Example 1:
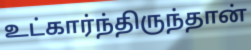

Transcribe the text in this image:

உட்கார்ந்திருந்தான்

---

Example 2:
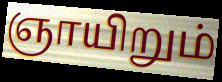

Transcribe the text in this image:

ஞாயிறும்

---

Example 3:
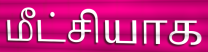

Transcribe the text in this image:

மீட்சியாக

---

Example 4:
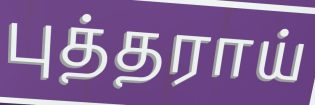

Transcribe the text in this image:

புத்தராய்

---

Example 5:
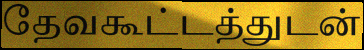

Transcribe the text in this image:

தேவகூட்டத்துடன்